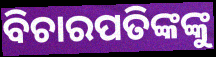
ବିଚାରପତିଙ୍କଙ୍କୁ